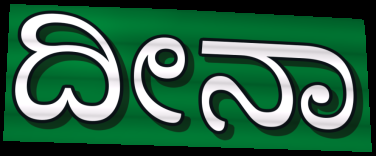
ದೀನಾ